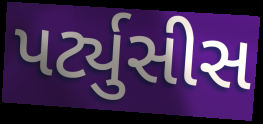
પર્ટ્યુસીસ